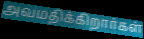
அவமதிக்கிறார்கள்